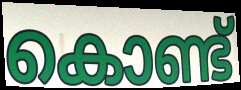
കൊണ്ട്